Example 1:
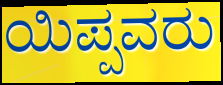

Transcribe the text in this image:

ಯಿಪ್ಪವರು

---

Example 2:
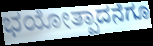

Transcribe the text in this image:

ಭಯೋತ್ಪಾದನೆಗೂ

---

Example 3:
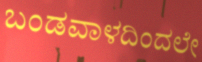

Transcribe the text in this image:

ಬಂಡವಾಳದಿಂದಲೇ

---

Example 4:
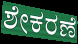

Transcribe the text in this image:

ಶೇಕರಣೆ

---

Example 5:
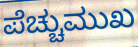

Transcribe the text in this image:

ಪೆಚ್ಚುಮುಖ